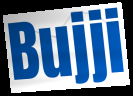
Bujji